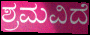
ಶ್ರಮವಿದೆ